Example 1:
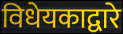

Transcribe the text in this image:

विधेयकाद्वारे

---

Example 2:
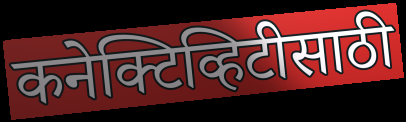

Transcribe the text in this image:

कनेक्टिव्हिटीसाठी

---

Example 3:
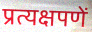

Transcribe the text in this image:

प्रत्यक्षपणें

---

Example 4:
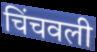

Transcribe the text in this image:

चिंचवली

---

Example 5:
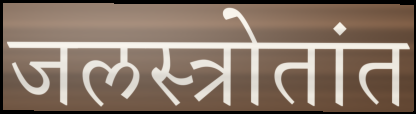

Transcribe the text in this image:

जलस्त्रोतांत